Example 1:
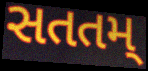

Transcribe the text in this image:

સતતમ્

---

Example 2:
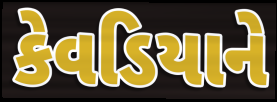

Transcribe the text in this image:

કેવડિયાને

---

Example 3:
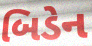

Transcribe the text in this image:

બિડેન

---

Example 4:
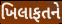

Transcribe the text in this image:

ખિલાફતને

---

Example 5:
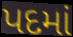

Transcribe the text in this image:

પદમાં